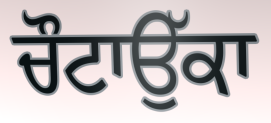
ਚੌਟਾਉੱਕਾ